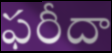
ఫరీదా